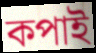
কপাই